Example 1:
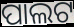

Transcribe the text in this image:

ପାଲଟ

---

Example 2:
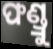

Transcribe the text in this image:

ଫଣ୍ଡ୍ରୁ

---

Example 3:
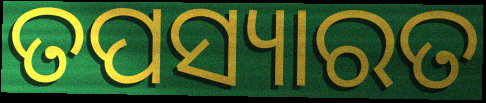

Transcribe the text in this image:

ତପସ୍ୟାରତ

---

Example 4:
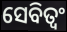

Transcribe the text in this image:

ସେବିତ୍ୱଂ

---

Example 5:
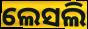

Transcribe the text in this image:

ଲେସଲି